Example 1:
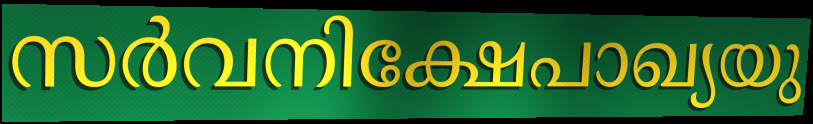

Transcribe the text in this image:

സർവനിക്ഷേപാഖ്യയു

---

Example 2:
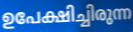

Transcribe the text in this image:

ഉപേക്ഷിച്ചിരുന്ന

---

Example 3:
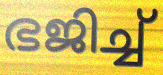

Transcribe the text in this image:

ഭജിച്ച്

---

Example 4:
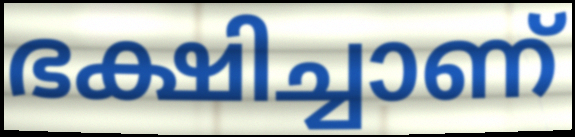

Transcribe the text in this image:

ഭക്ഷിച്ചാണ്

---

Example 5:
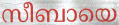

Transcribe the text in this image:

സീബായെ